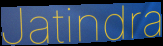
Jatindra